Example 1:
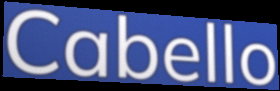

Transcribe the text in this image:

Cabello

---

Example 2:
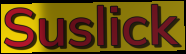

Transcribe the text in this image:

Suslick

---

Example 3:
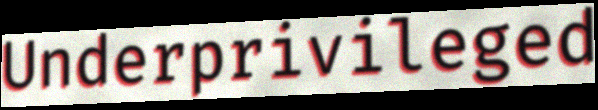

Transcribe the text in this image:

Underprivileged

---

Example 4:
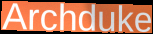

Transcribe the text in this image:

Archduke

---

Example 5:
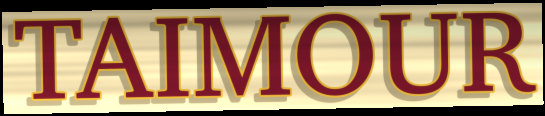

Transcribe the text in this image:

TAIMOUR